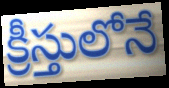
క్రీస్తులోనే